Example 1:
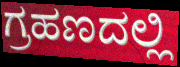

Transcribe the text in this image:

ಗ್ರಹಣದಲ್ಲಿ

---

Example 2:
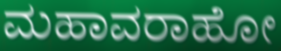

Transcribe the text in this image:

ಮಹಾವರಾಹೋ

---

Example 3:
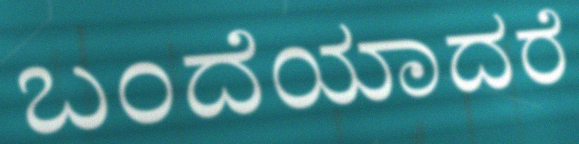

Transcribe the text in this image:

ಬಂದೆಯಾದರೆ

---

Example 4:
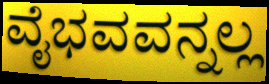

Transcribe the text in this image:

ವೈಭವವನ್ನಲ್ಲ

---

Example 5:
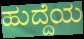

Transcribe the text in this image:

ಹುದ್ದೆಯ